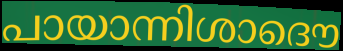
പായാന്നിശാദൌ